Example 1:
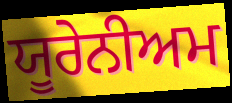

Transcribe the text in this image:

ਯੂਰੇਨੀਅਮ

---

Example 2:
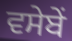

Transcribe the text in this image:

ਵਸੇਬੇਂ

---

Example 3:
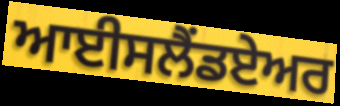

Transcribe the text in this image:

ਆਈਸਲੈਂਡਏਅਰ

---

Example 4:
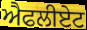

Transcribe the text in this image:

ਐਫਲੀਏਟ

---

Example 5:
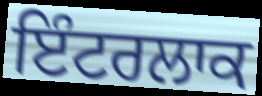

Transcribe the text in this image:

ਇੰਟਰਲਾਕ